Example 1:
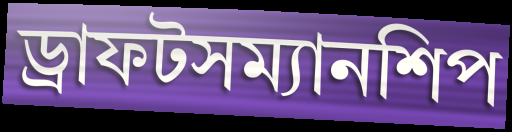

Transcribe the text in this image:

ড্রাফটসম্যানশিপ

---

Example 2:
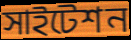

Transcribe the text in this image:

সাইটেশন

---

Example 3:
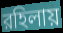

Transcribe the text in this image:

রহিলায়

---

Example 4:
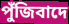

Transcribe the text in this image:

পুঁজিবাদে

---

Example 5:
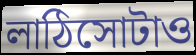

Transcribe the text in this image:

লাঠিসোটাও